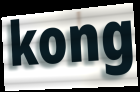
kong